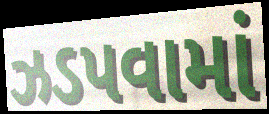
ઝડપવામાં